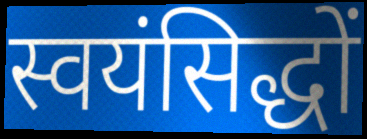
स्वयंसिद्धों